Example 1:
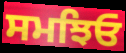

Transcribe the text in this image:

ਸਮਝਿਓ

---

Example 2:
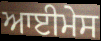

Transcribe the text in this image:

ਆਈਮੇਸ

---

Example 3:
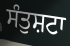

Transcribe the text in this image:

ਸੰਤੁਸ਼ਟਾ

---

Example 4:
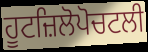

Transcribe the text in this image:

ਹੂਟਜ਼ਿਲੋਪੋਚਟਲੀ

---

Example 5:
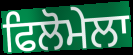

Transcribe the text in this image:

ਫਿਲੋਮੇਲਾ